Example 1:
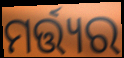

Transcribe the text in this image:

ମର୍ତ୍ତ୍ୟର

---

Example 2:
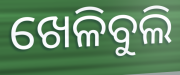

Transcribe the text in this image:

ଖେଳିବୁଲି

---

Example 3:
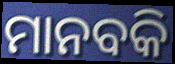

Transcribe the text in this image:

ମାନବକି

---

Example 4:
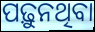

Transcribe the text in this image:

ପଢ଼ୁନଥିବା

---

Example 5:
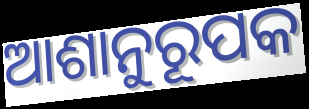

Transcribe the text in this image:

ଆଶାନୁରୂପକ